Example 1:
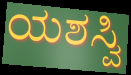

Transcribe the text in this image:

ಯಶಸ್ವಿ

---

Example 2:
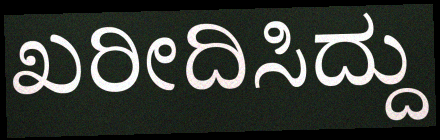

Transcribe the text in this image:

ಖರೀದಿಸಿದ್ದು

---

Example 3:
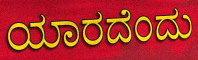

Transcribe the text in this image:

ಯಾರದೆಂದು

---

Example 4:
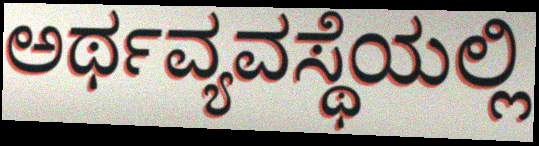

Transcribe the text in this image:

ಅರ್ಥವ್ಯವಸ್ಥೆಯಲ್ಲಿ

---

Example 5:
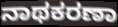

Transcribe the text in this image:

ನಾಥಕರಣಾ